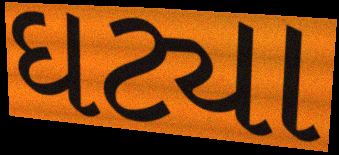
ઘટ્યા